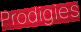
Prodigies